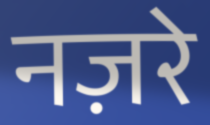
नज़रे